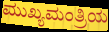
ಮುಖ್ಯಮಂತ್ರಿಯ